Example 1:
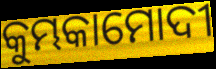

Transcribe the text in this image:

କୁମ୍ଭକାମୋଦୀ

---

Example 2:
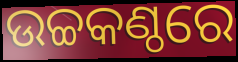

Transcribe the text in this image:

ଉଚ୍ଚକଣ୍ଠରେ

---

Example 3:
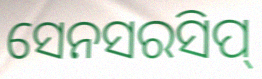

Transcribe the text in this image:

ସେନସରସିପ୍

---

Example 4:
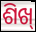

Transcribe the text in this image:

ଶିଖ୍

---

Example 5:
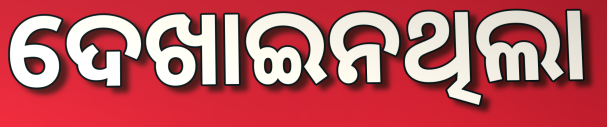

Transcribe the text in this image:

ଦେଖାଇନଥିଲା